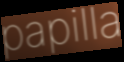
papilla